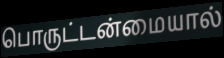
பொருட்டன்மையால்